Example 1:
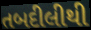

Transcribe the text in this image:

તબદીલીથી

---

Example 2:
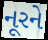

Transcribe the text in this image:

નૂરને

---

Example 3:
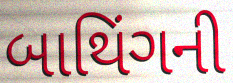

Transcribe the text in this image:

બાથિંગની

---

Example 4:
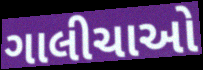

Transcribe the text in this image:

ગાલીચાઓ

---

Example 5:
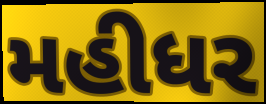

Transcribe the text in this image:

મહીધર